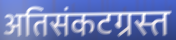
अतिसंकटग्रस्त